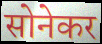
सोनेकर